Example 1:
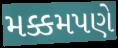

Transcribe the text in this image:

મક્કમપણે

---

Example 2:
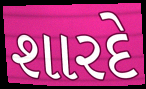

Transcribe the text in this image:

શારદે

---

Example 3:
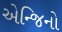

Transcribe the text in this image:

એન્જિનો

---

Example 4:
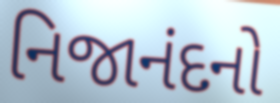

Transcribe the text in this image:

નિજાનંદનો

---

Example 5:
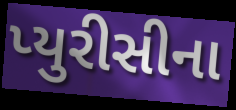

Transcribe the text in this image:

પ્યુરીસીના